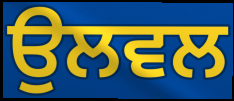
ਉਲਵਲ